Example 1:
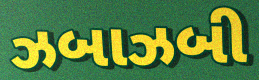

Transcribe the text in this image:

ઝબાઝબી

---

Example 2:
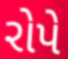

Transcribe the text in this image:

રોપે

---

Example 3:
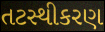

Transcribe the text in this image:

તટસ્થીકરણ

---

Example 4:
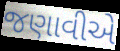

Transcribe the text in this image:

જણાવીએ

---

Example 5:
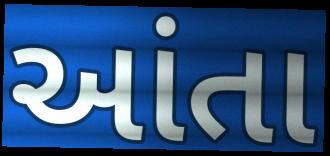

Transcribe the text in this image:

આંતા